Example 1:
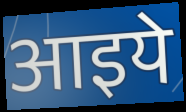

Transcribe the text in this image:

आइये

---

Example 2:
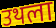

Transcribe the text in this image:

उथला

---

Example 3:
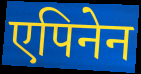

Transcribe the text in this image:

एपिनेन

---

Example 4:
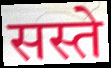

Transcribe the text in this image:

सस्ते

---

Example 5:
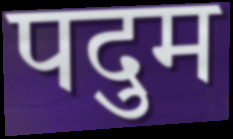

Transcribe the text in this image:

पदुम